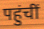
पहुंचीं